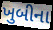
ખુબીના